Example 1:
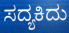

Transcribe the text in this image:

ಸದ್ಯಕಿದು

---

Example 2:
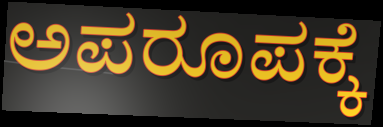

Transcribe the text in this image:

ಅಪರೂಪಕ್ಕೆ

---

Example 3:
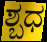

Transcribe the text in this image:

ಶ್ಬಧ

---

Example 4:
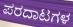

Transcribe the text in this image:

ಪರದಾಟಗಳ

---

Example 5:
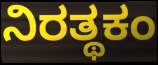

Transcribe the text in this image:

ನಿರತ್ಥಕಂ